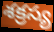
శక్రస్య